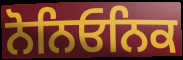
ਨੋਨਿਓਨਿਕ